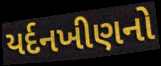
યર્દનખીણનો